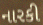
નારકી